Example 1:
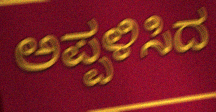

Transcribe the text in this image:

ಅಪ್ಪಳಿಸಿದ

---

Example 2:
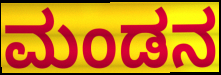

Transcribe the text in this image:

ಮಂಡನ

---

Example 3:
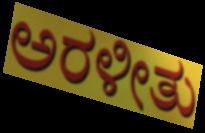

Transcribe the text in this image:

ಅರಳೀತು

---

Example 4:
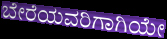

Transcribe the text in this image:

ಬೇರೆಯವರಿಗಾಗಿಯೇ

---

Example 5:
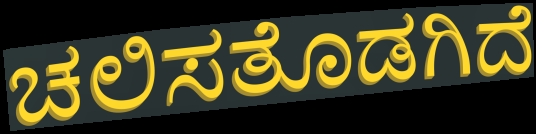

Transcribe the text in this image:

ಚಲಿಸತೊಡಗಿದೆ